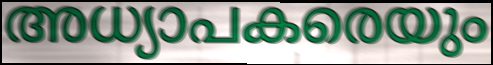
അധ്യാപകരെയും